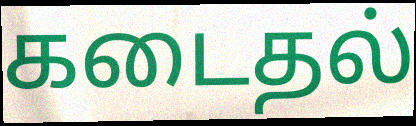
கடைதல்